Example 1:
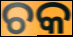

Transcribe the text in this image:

ଚକ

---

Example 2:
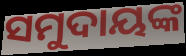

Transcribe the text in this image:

ସମୁଦାୟଙ୍କ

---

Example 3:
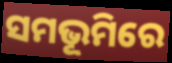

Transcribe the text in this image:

ସମଭୂମିରେ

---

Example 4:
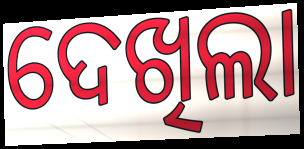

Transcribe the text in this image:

ଦେଖିଲା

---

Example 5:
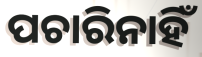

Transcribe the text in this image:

ପଚାରିନାହିଁ